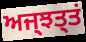
ਅਜ੍ਝਤ੍ਤਂ